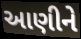
આણીને